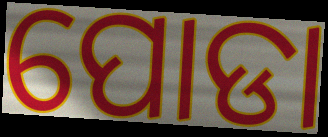
ପୋଡା